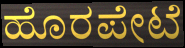
ಹೊರಪೇಟೆ